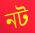
নট